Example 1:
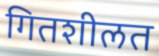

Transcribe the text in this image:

गितशीलत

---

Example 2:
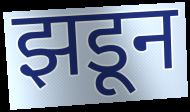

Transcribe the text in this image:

झडून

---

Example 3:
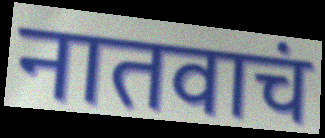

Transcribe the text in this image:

नातवाचं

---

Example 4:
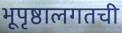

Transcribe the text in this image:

भूपृष्ठालगतची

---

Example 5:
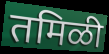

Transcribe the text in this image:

तमिळी